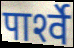
पार्श्वे